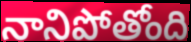
నానిపోతోంది